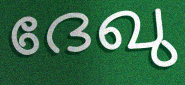
ദേഖു